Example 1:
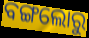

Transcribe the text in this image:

ବଙ୍ଗଲୋରୁ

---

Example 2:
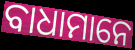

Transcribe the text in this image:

ବାଧାମାନେ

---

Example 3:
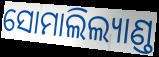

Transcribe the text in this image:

ସୋମାଲିଲ୍ୟାଣ୍ଡ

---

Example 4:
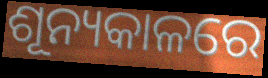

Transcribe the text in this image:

ଶୂନ୍ୟକାଳରେ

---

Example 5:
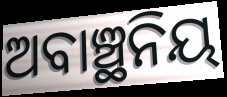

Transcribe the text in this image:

ଅବାଞ୍ଛନିୟ